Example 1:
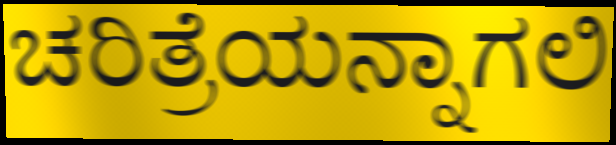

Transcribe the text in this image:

ಚರಿತ್ರೆಯನ್ನಾಗಲಿ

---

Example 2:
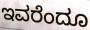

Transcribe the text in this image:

ಇವರೆಂದೂ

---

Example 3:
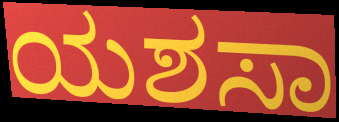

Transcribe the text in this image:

ಯಶಸಾ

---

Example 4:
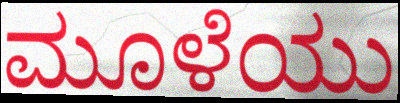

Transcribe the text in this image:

ಮೂಳೆಯು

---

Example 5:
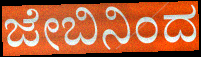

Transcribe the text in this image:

ಜೇಬಿನಿಂದ